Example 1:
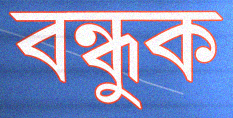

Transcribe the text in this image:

বন্ধুক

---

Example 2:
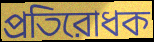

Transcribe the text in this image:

প্রতিরোধক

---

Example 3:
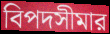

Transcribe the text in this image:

বিপদসীমার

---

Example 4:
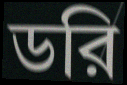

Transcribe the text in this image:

ডরি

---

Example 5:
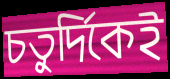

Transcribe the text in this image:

চতুর্দিকেই